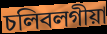
চলিবলগীয়া